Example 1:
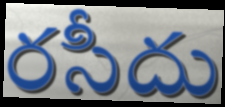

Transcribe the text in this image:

రసీదు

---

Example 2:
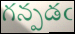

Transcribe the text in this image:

గన్పడఁ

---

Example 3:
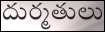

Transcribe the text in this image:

దుర్మతులు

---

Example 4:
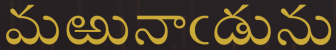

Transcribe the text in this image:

మఱునాఁడును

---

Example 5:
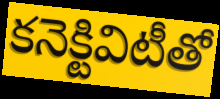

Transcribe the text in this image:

కనెక్టివిటీతో